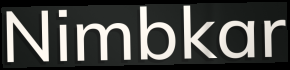
Nimbkar